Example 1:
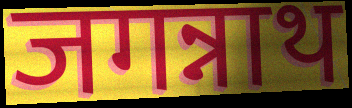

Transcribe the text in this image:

जगन्नाथ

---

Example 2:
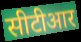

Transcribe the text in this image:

सीटीआर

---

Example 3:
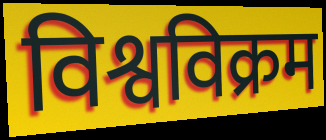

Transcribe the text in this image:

विश्वविक्रम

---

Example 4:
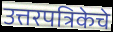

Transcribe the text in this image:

उत्तरपत्रिकेचे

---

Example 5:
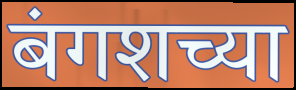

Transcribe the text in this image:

बंगशच्या